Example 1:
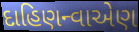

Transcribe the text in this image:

દાહિણન્વાએણ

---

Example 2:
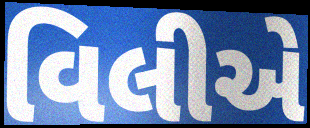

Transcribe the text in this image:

વિલીએ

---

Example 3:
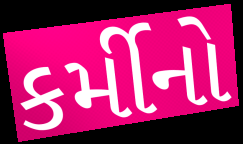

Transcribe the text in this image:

કર્મીનો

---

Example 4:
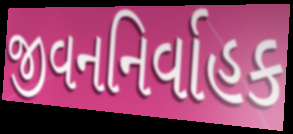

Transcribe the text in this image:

જીવનનિર્વાહક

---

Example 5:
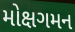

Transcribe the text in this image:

મોક્ષગમન